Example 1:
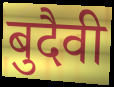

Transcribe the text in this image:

बुदैवी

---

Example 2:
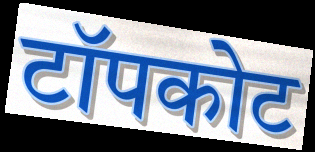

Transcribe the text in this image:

टॉपकोट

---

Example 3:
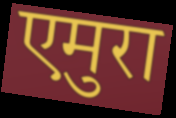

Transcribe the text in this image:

एमुरा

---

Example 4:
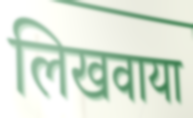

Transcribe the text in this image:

लिखवाया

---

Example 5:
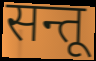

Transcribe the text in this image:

सन्तू